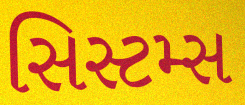
સિસ્ટમ્સ